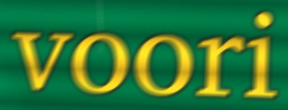
voori